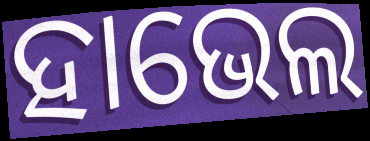
ହାଭେଲ